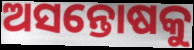
ଅସନ୍ତୋଷକୁ